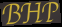
BHP